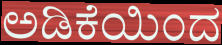
ಅಡಿಕೆಯಿಂದ